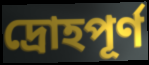
দ্রোহপূর্ণ